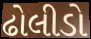
ઢોલીડો